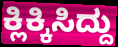
ಕ್ಲಿಕ್ಕಿಸಿದ್ದು